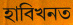
হাবিখনত